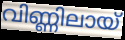
വിണ്ണിലായ്